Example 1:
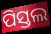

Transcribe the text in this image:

ପିସ୍ତଲ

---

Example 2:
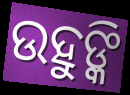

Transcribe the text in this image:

ଉହୁଙ୍କି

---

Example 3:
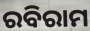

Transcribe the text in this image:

ରବିରାମ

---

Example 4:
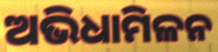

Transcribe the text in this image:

ଅଭିଧାମିଳନ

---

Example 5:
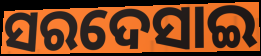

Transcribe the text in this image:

ସରଦେସାଇ